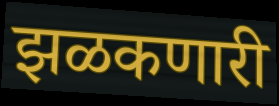
झळकणारी